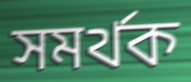
সমৰ্থক